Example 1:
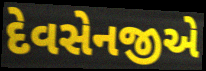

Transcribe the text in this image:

દેવસેનજીએ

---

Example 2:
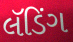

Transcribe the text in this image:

લૅડિંગ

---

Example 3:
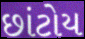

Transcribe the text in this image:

છાંટોય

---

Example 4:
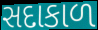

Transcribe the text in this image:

સદાકાળ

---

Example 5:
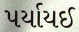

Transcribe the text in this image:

પર્યાયઈ